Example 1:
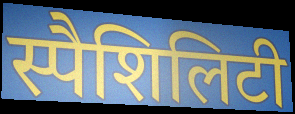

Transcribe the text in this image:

स्पैशिलिटी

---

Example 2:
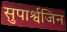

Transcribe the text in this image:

सुपार्श्वजिन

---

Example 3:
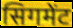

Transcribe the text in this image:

सिगमेंट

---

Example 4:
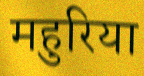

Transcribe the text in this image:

महुरिया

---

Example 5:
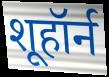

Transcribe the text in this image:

शूहॉर्न